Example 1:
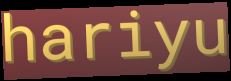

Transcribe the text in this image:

hariyu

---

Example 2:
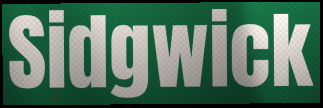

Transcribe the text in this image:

Sidgwick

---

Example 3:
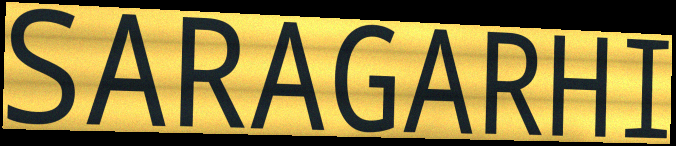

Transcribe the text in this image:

SARAGARHI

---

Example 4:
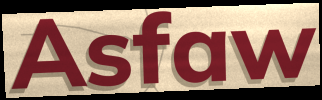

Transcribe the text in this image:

Asfaw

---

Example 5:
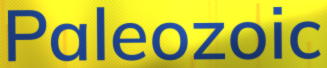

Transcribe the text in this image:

Paleozoic